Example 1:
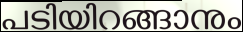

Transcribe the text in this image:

പടിയിറങ്ങാനും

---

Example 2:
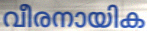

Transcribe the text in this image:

വീരനായിക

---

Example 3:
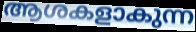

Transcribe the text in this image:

ആശകളാകുന്ന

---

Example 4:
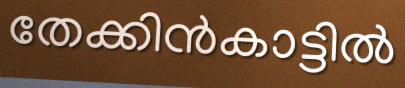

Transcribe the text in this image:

തേക്കിൻകാട്ടിൽ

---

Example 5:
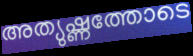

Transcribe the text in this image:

അത്യുഷ്ണത്തോടെ